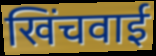
खिंचवाई